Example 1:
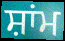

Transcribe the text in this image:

ਸ਼ਾਂਮ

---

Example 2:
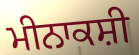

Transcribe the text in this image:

ਮੀਨਾਕਸ਼ੀ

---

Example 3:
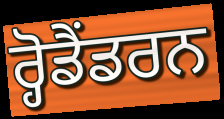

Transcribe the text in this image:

ਰ੍ਹੋਡੈਂਡਰਨ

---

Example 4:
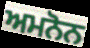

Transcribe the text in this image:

ਅਮਨੋਨ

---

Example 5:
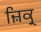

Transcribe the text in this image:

ਜ਼ਿਕ੍ਰ